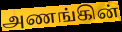
அணங்கின்